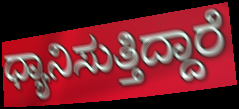
ಧ್ಯಾನಿಸುತ್ತಿದ್ದಾರೆ